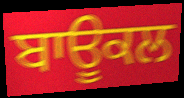
ਬਾਊਕਲ